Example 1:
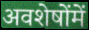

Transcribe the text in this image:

अवशेषोंमें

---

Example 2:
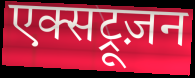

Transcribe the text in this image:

एक्सट्रूज़न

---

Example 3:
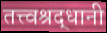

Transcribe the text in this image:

तत्त्वश्रद्धानी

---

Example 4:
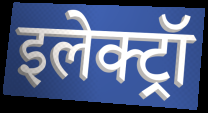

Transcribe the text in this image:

इलेक्ट्रॉ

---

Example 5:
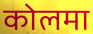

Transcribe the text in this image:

कोलमा